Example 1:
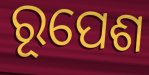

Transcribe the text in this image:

ରୂପେଶ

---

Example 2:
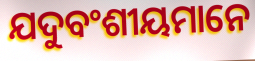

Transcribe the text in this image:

ଯଦୁବଂଶୀୟମାନେ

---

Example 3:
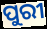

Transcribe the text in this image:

ପୁରୀ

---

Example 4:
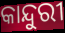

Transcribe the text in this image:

କାନ୍ଦୁରୀ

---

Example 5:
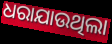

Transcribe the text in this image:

ଧରାଯାଉଥିଲା